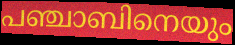
പഞ്ചാബിനെയും